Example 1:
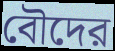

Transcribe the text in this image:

বৌদের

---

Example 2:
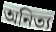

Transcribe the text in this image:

অনিত্য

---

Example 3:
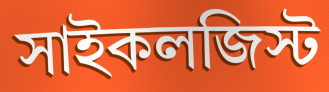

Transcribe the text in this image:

সাইকলজিস্ট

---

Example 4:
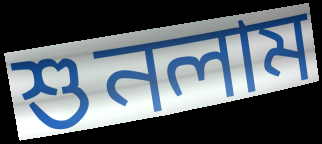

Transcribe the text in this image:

শুনলাম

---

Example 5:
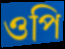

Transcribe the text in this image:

ওপি